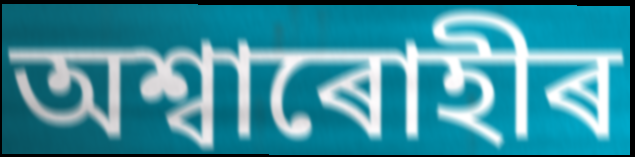
অশ্বাৰোহীৰ